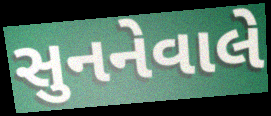
સુનનેવાલે